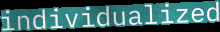
individualized